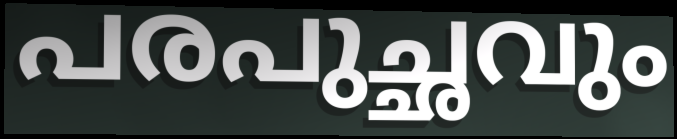
പരപുച്ഛവും